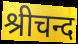
श्रीचन्द